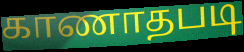
காணாதபடி